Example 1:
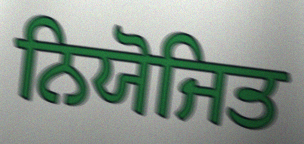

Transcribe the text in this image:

ਨਿਯੋਜਿਤ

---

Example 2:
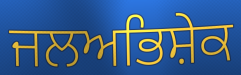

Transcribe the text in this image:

ਜਲਅਭਿਸ਼ੇਕ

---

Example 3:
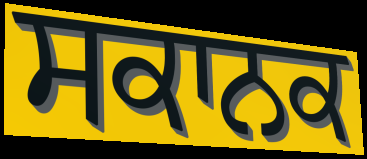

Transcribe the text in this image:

ਸਕਾਨਕ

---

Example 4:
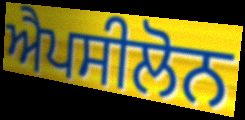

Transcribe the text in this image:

ਐਪਸੀਲੋਨ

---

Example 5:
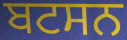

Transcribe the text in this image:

ਬਟਸਨ